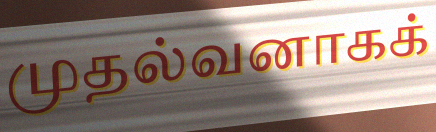
முதல்வனாகக்